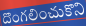
దొంగలించుకొని